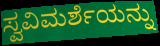
ಸ್ವವಿಮರ್ಶೆಯನ್ನು